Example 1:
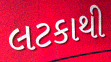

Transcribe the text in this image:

લટકાથી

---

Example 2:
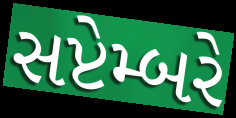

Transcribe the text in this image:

સપ્ટેમ્બરે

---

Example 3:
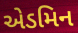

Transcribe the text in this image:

એડમિન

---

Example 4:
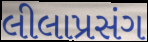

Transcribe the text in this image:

લીલાપ્રસંગ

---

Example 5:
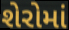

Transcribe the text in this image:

શેરોમાં